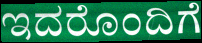
ಇದರೊಂದಿಗೆ